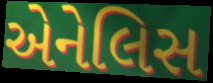
એનેલિસ